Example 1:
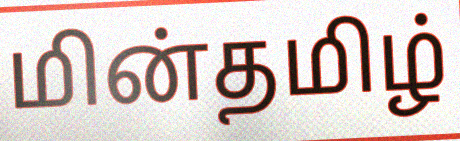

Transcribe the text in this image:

மின்தமிழ்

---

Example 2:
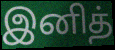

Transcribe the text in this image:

இனித்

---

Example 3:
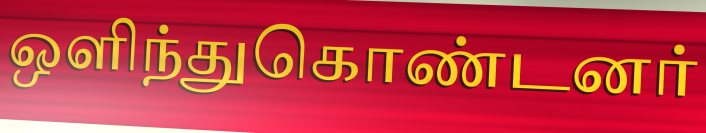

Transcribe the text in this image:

ஒளிந்துகொண்டனர்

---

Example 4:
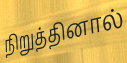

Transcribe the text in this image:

நிறுத்தினால்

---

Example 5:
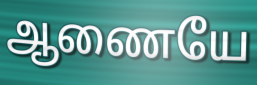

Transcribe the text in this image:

ஆணையே